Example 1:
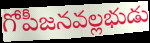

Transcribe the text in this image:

గోపీజనవల్లభుడు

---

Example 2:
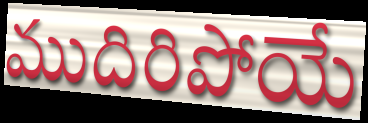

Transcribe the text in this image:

ముదిరిపోయే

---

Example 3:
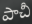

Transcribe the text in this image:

పాచీ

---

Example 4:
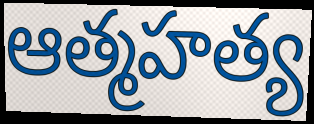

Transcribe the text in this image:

ఆత్మహత్య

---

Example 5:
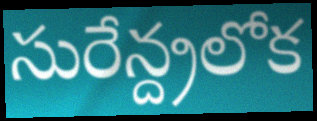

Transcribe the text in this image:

సురేన్ద్రలోక